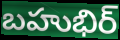
బహుభిర్